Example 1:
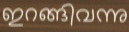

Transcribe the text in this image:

ഇറങ്ങിവന്നു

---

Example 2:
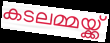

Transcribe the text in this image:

കടലമ്മയ്ക്ക്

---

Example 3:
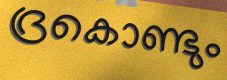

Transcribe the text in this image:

ദ്രകൊണ്ടും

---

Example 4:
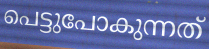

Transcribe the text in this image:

പെട്ടുപോകുന്നത്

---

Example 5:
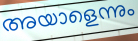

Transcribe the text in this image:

അയാളെന്നും